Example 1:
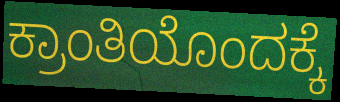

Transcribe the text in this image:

ಕ್ರಾಂತಿಯೊಂದಕ್ಕೆ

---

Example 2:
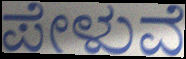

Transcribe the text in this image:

ಪೇಳುವೆ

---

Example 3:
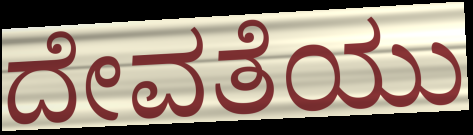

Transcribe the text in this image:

ದೇವತೆಯು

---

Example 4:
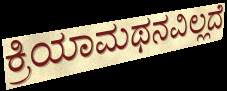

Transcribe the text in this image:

ಕ್ರಿಯಾಮಥನವಿಲ್ಲದೆ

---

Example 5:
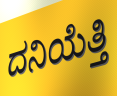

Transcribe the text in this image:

ದನಿಯೆತ್ತಿ